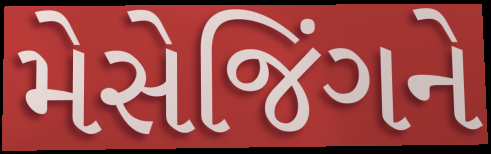
મેસેજિંગને